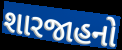
શારજાહનો